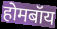
होमबॉय